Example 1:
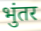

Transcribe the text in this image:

भुंतर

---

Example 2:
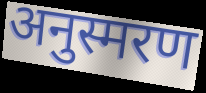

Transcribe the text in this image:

अनुस्मरण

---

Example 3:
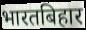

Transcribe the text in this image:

भारतबिहार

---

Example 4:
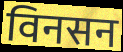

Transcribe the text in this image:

विनसन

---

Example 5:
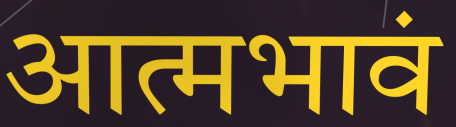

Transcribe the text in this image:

आत्मभावं